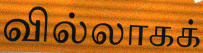
வில்லாகக்